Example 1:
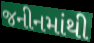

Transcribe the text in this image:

જનીનમાંથી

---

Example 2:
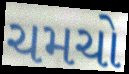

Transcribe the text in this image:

ચમચો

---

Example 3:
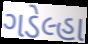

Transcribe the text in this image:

ગડેલ્હા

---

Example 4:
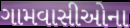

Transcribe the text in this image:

ગામવાસીઓના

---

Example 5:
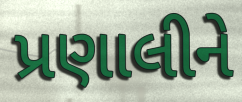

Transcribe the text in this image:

પ્રણાલીને